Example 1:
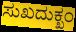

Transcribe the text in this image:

ಸುಖದುಕ್ಖಂ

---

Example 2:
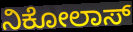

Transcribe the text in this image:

ನಿಕೋಲಾಸ್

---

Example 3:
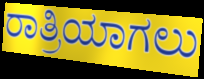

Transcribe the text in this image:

ರಾತ್ರಿಯಾಗಲು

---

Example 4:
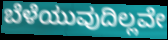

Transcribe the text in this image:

ಬೆಳೆಯುವುದಿಲ್ಲವೇ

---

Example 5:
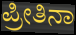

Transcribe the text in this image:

ಪ್ರೀತಿನಾ